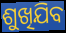
ଶୁଖିଯିବ